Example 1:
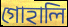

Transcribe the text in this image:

গোহালি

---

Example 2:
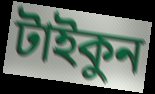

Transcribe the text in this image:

টাইকুন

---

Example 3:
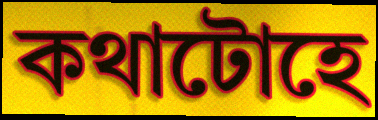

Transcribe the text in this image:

কথাটোহে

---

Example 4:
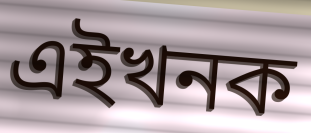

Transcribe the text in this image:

এইখনক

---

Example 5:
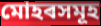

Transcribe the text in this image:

মোহৰসমূহ